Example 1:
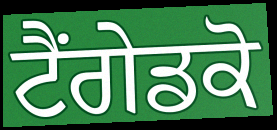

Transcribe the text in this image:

ਟੈਂਗੇਡਕੋ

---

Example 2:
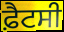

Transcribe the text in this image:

ਫ਼ੈਟਸੀ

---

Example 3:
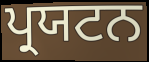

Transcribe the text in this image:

ਪ੍ਰਯਟਨ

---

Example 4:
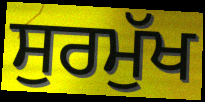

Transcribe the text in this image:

ਸੁਰਮੁੱਖ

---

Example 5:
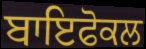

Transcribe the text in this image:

ਬਾਇਫੋਕਲ